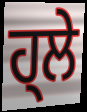
ਹ੍ਲੇ